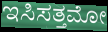
ಇಸಿಸತ್ತಮೋ